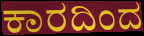
ಕಾರದಿಂದ